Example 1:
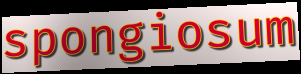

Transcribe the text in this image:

spongiosum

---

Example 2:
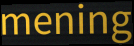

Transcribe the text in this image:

mening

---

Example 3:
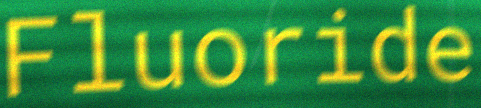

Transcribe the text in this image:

Fluoride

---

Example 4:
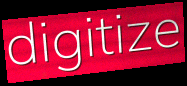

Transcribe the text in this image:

digitize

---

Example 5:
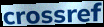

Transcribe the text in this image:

crossref